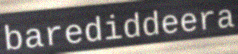
barediddeera